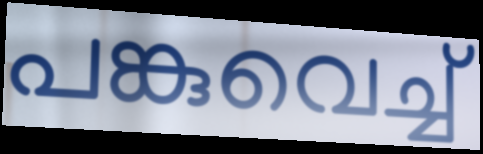
പങ്കുവെച്ച്